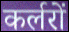
कर्लरों